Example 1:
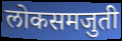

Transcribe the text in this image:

लोकसमजुती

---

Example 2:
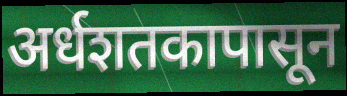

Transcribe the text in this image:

अर्धशतकापासून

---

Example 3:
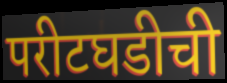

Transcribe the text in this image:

परीटघडीची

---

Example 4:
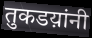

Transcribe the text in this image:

तुकडय़ांनी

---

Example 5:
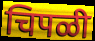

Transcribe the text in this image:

चिपळी